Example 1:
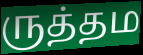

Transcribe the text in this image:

ருத்தம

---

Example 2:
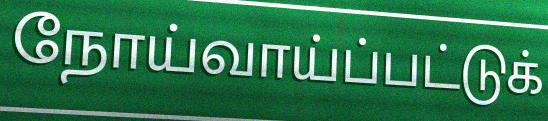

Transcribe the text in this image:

நோய்வாய்ப்பட்டுக்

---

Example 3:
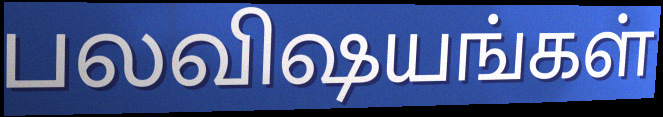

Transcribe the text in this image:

பலவிஷயங்கள்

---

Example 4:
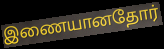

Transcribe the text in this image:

இணையானதோர்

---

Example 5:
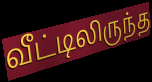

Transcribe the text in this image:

வீட்டிலிருந்த